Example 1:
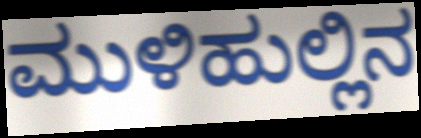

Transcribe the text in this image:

ಮುಳಿಹುಲ್ಲಿನ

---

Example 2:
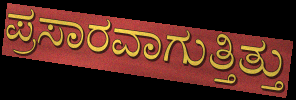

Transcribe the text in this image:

ಪ್ರಸಾರವಾಗುತ್ತಿತ್ತು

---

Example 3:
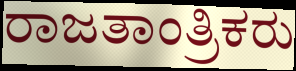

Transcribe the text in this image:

ರಾಜತಾಂತ್ರಿಕರು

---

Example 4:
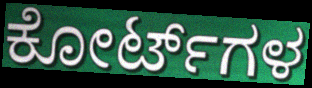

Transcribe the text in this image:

ಕೋರ್ಟ್‌ಗಳ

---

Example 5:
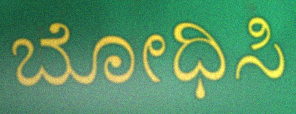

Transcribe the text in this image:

ಬೋಧಿಸಿ